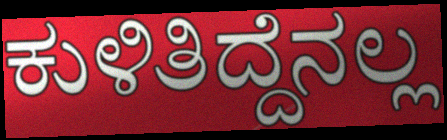
ಕುಳಿತಿದ್ದೆನಲ್ಲ